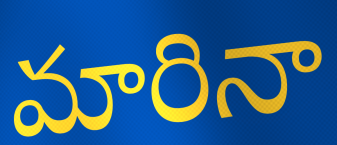
మారినా